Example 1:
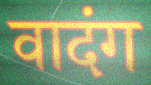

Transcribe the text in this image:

वादंग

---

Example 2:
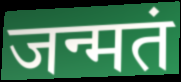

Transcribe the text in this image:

जन्मतं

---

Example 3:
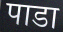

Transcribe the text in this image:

पाडा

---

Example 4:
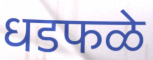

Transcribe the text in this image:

धडफळे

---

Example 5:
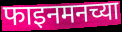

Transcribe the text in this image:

फाइनमनच्या